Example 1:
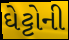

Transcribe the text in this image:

ઘેટ્ટોની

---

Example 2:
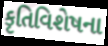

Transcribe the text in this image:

કૃતિવિશેષના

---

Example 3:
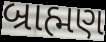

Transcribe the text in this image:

બ્રાહ્મણ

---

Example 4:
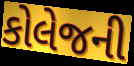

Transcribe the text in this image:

કોલેજની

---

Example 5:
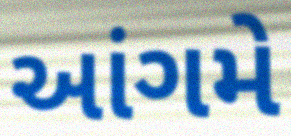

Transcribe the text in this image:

આંગમે